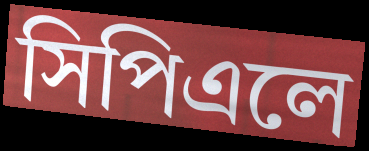
সিপিএলে